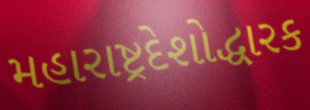
મહારાષ્ટ્રદેશોદ્ધારક